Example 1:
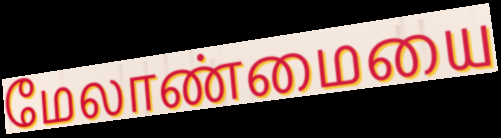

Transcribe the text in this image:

மேலாண்மையை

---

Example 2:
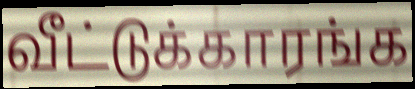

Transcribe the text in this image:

வீட்டுக்காரங்க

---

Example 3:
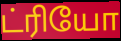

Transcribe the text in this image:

ட்ரியோ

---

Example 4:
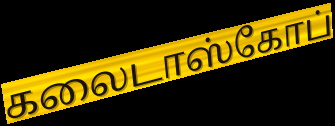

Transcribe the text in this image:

கலைடாஸ்கோப்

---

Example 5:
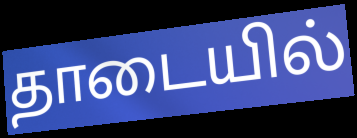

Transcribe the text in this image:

தாடையில்